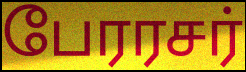
பேரரசர்